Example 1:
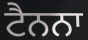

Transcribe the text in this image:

ਟੈਨਨਾ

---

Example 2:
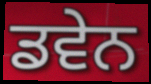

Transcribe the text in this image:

ਡਵੇਨ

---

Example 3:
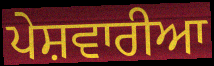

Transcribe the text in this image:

ਪੇਸ਼ਵਾਰੀਆ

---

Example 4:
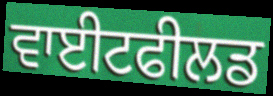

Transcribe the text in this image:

ਵਾਈਟਫੀਲਡ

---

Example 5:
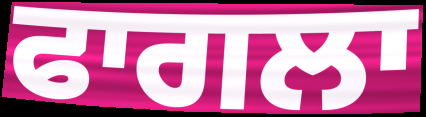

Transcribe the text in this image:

ਫਾਗਲਾ